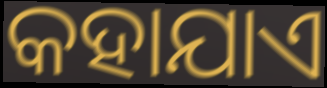
କହାଯାଏ